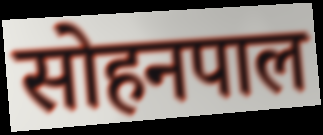
सोहनपाल